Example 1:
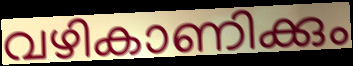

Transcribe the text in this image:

വഴികാണിക്കും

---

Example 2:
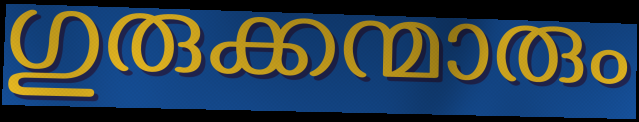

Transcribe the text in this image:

ഗുരുക്കന്മാരും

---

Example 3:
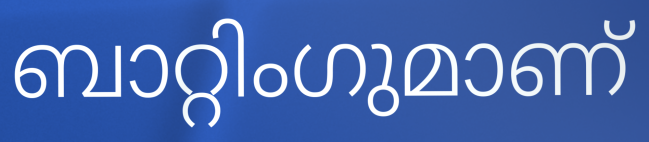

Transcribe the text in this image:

ബാറ്റിംഗുമാണ്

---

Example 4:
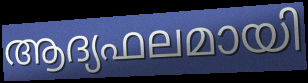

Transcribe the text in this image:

ആദ്യഫലമായി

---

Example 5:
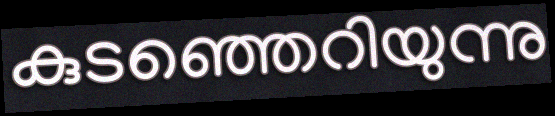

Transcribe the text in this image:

കുടഞ്ഞെറിയുന്നു